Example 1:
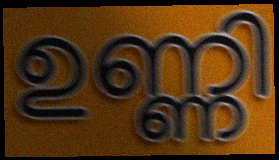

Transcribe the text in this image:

ഉണ്ണി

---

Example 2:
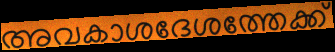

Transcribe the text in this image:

അവകാശദേശത്തേക്ക്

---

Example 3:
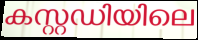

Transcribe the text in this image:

കസ്റ്റഡിയിലെ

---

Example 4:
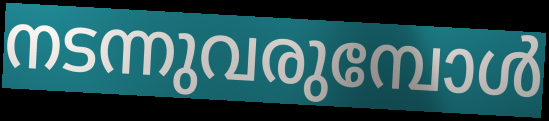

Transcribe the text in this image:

നടന്നുവരുമ്പോൾ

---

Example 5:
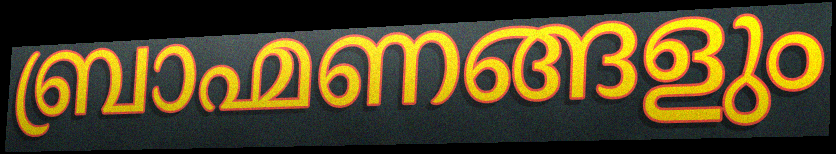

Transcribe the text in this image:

ബ്രാഹ്മണങ്ങളും